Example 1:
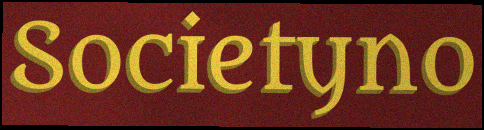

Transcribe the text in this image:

Societyno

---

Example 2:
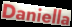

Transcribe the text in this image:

Daniella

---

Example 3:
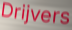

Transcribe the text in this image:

Drijvers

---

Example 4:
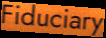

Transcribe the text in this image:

Fiduciary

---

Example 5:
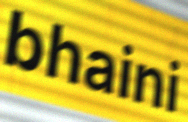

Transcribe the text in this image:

bhaini